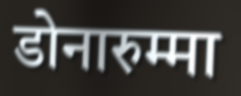
डोनारुम्मा